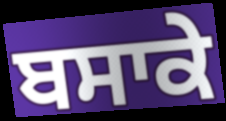
ਬਸਾਕੇ